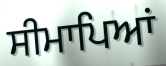
ਸੀਮਾਪਿਆਂ